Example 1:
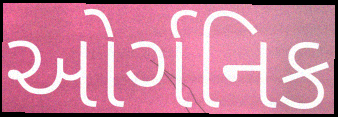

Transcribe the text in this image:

ઓર્ગનિક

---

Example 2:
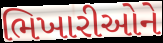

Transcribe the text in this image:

ભિખારીઓને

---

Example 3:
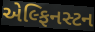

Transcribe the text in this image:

એલ્ફિનસ્ટન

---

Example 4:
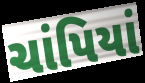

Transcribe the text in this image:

ચાંપિયાં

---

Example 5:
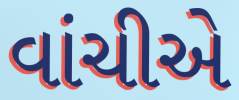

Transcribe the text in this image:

વાંચીએ